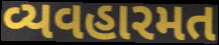
વ્યવહારમત